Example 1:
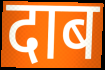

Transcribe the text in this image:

दाब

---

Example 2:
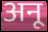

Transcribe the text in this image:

अनू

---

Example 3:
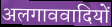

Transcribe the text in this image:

अलगाववादियों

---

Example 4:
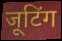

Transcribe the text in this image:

जूटिंग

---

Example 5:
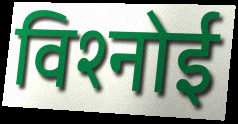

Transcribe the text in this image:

विश्नोई